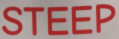
STEEP